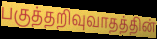
பகுத்தறிவுவாதத்தின்